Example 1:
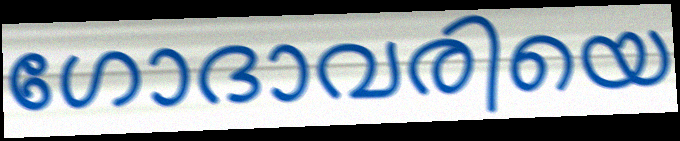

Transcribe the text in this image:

ഗോദാവരിയെ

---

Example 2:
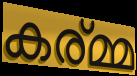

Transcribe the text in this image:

കര്മ്മ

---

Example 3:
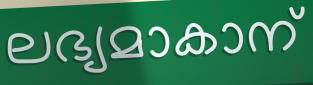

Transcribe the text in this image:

ലഭ്യമാകാന്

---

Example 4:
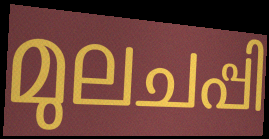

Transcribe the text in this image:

മുലചപ്പി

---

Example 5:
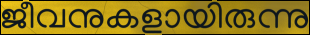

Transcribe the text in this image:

ജീവനുകളായിരുന്നു